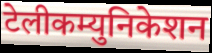
टेलीकम्युनिकेशन